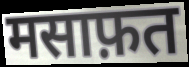
मसाफ़त